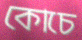
কোচে